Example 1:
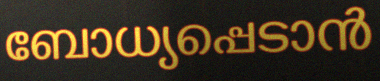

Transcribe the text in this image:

ബോധ്യപ്പെടാൻ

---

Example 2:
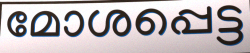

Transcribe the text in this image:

മോശപ്പെട്ട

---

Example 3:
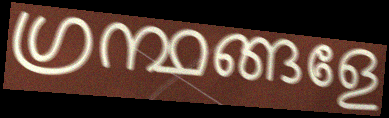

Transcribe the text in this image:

ഗ്രന്ഥങ്ങളേ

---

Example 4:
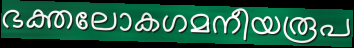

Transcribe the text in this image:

ഭക്തലോകഗമനീയരൂപ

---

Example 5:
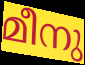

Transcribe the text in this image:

മീനു